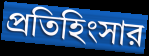
প্রতিহিংসার